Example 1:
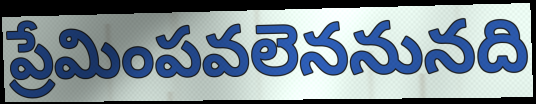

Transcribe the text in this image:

ప్రేమింపవలెననునది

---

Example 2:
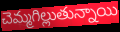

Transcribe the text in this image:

చెమ్మగిల్లుతున్నాయి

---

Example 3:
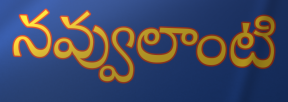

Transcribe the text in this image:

నవ్వులాంటి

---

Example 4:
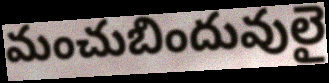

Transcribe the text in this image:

మంచుబిందువులై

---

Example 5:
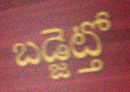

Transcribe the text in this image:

బడ్జెట్తో